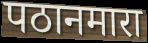
पठानमारा